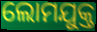
ଲୋମଯୁକ୍ତ